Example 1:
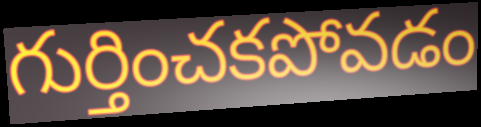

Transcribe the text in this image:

గుర్తించకపోవడం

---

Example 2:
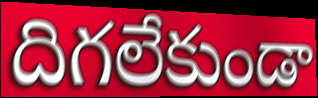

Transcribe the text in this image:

దిగలేకుండా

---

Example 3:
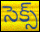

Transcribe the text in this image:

సెక్స్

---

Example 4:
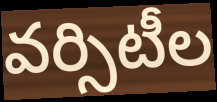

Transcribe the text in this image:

వర్సిటీల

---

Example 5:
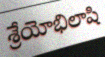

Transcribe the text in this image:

శ్రేయోభిలాషి